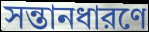
সন্তানধারণে